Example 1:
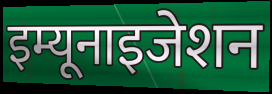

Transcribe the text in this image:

इम्यूनाइजेशन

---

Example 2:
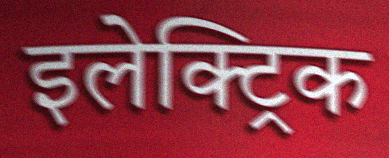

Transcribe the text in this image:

इलेक्ट्रिक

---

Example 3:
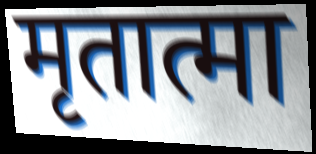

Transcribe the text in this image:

मृतात्मा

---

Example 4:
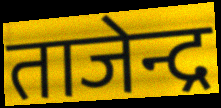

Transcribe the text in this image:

ताजेन्द्र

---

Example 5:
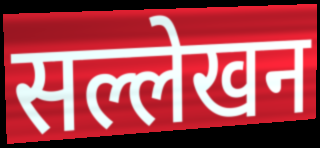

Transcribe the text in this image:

सल्लेखन